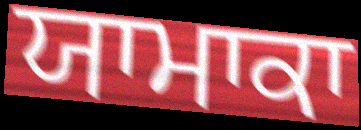
ਯਾਮਾਕਾ